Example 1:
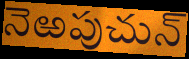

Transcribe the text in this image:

నెఱపుచున్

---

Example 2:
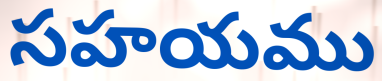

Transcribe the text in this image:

సహయము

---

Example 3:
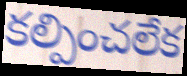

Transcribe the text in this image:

కల్పించలేక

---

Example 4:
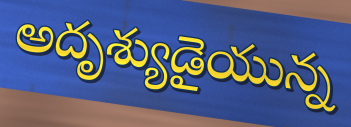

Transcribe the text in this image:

అదృశ్యుడైయున్న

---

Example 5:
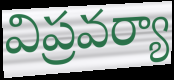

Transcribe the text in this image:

విప్రవర్యా